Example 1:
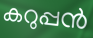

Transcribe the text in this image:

കറുപ്പൻ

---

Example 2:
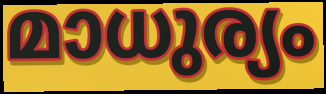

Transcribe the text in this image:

മാധുര്യം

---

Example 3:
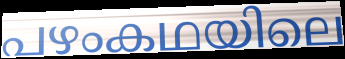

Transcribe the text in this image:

പഴംകഥയിലെ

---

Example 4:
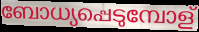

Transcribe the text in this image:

ബോധ്യപ്പെടുമ്പോള്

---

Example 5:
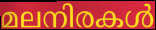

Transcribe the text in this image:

മലനിരകൾ